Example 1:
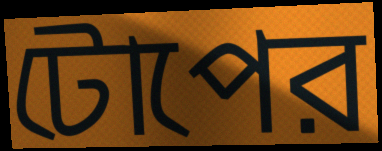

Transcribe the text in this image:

টোপের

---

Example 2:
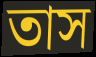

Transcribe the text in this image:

তাস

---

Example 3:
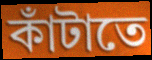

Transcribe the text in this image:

কাঁটাতে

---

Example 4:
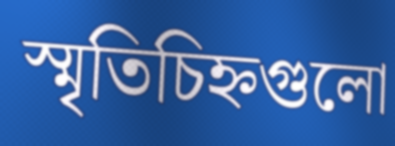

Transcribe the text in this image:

স্মৃতিচিহ্নগুলো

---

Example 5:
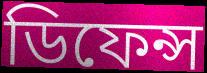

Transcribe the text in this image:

ডিফেন্স